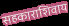
सहकाराशिवाय